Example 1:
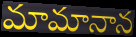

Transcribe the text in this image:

మామానాన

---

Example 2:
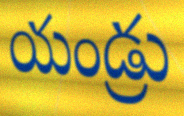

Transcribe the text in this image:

యండ్రు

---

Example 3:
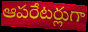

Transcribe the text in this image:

ఆపరేటర్లుగా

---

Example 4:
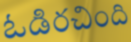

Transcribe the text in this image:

ఓడిరచింది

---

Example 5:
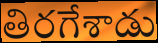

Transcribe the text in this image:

తిరగేశాడు